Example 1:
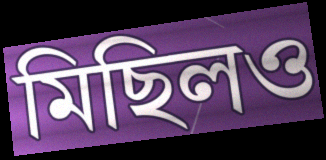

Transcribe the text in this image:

মিছিলও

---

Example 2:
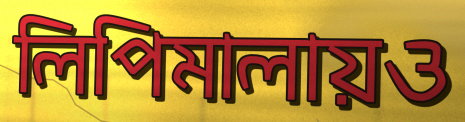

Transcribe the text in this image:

লিপিমালায়ও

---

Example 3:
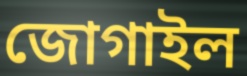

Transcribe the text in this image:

জোগাইল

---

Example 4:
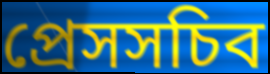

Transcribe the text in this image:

প্রেসসচিব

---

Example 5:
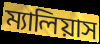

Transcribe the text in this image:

ম্যালিয়াস